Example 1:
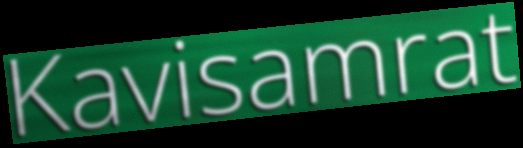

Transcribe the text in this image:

Kavisamrat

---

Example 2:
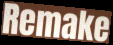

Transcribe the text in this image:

Remake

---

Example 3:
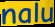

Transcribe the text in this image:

nalu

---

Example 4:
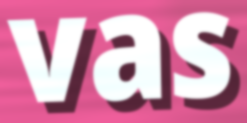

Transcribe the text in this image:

vas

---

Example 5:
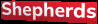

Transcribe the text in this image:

Shepherds